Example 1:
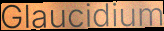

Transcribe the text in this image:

Glaucidium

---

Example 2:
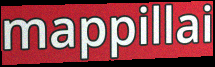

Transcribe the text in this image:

mappillai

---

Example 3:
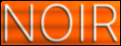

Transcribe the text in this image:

NOIR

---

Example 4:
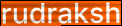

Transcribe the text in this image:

rudraksh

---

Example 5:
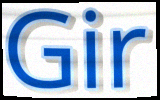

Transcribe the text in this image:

Gir